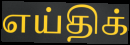
எய்திக்